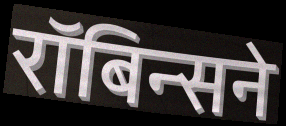
रॉबिन्सने